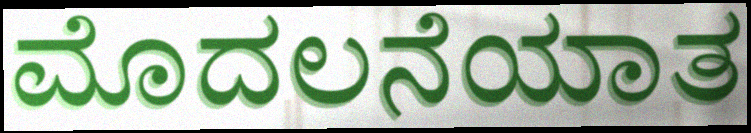
ಮೊದಲನೆಯಾತ